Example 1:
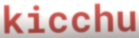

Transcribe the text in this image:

kicchu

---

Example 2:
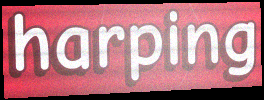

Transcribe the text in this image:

harping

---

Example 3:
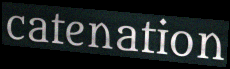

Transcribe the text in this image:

catenation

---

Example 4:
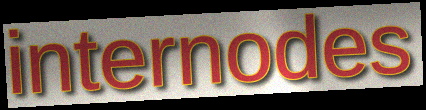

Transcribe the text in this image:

internodes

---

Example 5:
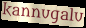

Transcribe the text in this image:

kannugalu